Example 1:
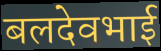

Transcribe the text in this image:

बलदेवभाई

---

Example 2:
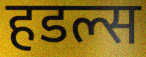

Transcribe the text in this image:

हडल्स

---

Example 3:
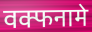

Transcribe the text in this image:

वक्फनामे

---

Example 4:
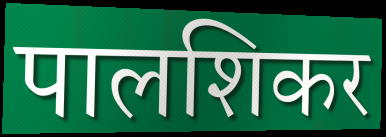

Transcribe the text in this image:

पालशिकर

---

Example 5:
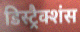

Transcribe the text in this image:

डिस्ट्रैक्शंस